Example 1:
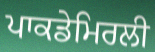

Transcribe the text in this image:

ਪਾਕਡੇਮਿਰਲੀ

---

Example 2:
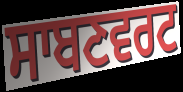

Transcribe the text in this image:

ਸਾਬਣਵਰਟ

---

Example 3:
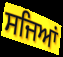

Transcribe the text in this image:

ਸਜਿਆਂ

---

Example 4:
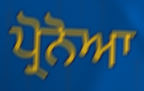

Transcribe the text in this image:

ਪ੍ਰੋਨੋਆ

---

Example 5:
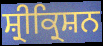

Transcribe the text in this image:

ਸ਼੍ਰੀਕ੍ਰਿਸ਼ਨ